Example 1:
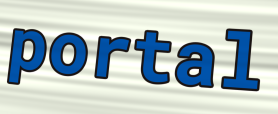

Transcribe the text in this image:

portal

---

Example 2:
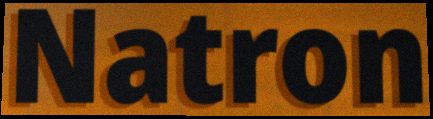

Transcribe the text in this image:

Natron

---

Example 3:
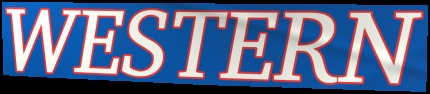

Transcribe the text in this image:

WESTERN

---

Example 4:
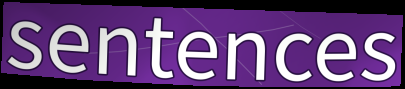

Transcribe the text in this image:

sentences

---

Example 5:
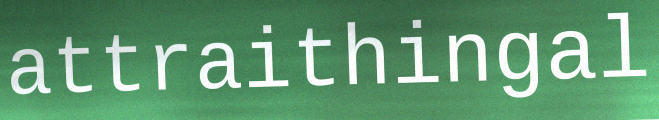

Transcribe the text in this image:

attraithingal